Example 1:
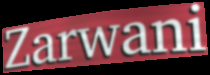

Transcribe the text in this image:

Zarwani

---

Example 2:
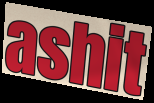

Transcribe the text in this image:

ashit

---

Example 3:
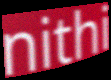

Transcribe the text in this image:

nithi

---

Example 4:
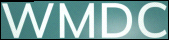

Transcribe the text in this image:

WMDC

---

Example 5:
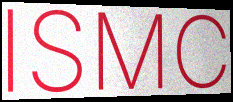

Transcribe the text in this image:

ISMC